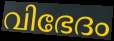
വിഭേദം